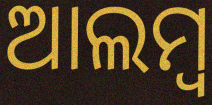
ଆଲମ୍ବ